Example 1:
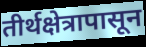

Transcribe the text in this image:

तीर्थक्षेत्रापासून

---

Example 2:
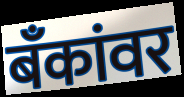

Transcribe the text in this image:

बँकांवर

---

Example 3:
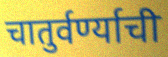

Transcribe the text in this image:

चातुर्वर्ण्याची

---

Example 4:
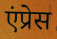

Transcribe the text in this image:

एंप्रेस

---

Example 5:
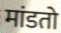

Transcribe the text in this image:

मांडतो